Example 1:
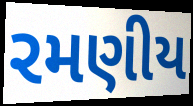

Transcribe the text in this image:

રમણીય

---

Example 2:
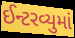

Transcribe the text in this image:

ઈન્ટરવ્યુમાં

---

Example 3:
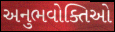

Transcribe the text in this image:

અનુભવોક્તિઓ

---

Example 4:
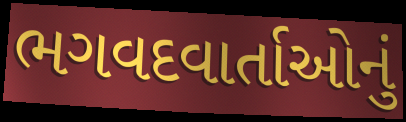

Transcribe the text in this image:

ભગવદવાર્તાઓનું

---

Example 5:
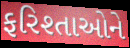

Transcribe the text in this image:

ફરિશ્તાઓને